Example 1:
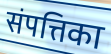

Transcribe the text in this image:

संपत्तिका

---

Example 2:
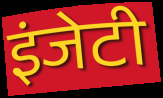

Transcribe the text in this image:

इंजेटी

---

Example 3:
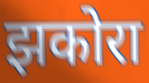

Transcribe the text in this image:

झकोरा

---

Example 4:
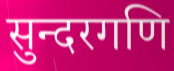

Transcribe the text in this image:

सुन्दरगणि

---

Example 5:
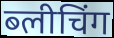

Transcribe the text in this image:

ब्‍लीचिंग